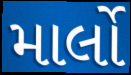
માર્લો